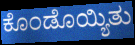
ಕೊಂಡೊಯ್ಯಿತು